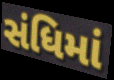
સંધિમાં